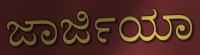
ಜಾರ್ಜಿಯಾ